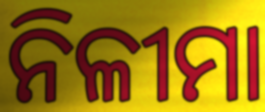
ନିଳୀମା